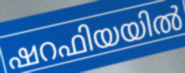
ഷറഫിയയിൽ